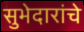
सुभेदारांचे